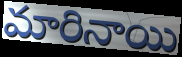
మారినాయి